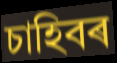
চাহিবৰ